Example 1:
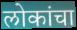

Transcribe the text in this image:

लोकांचा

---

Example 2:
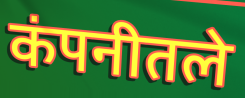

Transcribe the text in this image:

कंपनीतले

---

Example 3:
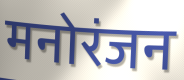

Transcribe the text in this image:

मनोरंजन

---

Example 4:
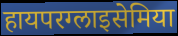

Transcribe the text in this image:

हायपरग्लाइसेमिया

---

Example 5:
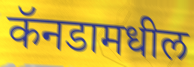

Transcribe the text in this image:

कॅनडामधील